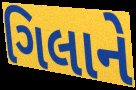
ગિલાને